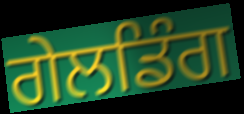
ਗੇਲਡਿੰਗ